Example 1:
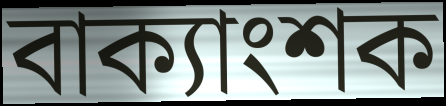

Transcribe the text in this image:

বাক্যাংশক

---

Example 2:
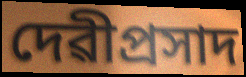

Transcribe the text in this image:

দেৱীপ্ৰসাদ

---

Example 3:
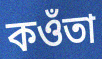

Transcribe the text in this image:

কওঁতা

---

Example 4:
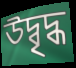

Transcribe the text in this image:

উদ্বৃদ্ধ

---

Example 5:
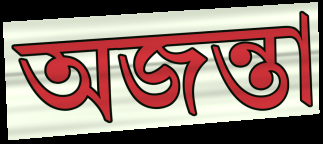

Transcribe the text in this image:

অজন্তা